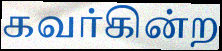
கவர்கின்ற